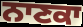
ਨਾਣਕਾ